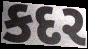
કદર